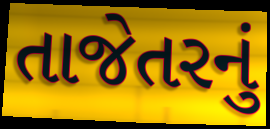
તાજેતરનું